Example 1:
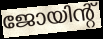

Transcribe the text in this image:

ജോയിന്റ്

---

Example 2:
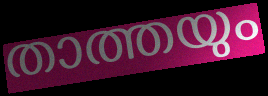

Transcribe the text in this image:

താത്തയും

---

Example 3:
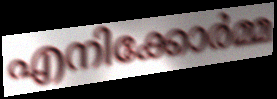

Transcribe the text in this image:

എനിക്കോർമ്മ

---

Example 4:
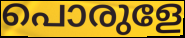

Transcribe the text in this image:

പൊരുളേ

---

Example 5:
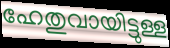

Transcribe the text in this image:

ഹേതുവായിട്ടുള്ള